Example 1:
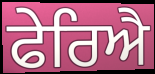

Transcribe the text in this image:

ਫੇਰਿਐ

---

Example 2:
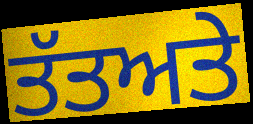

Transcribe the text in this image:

ਤੱਤਅਤੇ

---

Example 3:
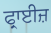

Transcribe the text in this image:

ਫ੍ਰਾਈਜ਼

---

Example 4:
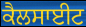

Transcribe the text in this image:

ਕੈਲਸਾਈਟ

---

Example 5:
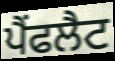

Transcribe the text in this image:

ਪੈਂਫਲੈਟ